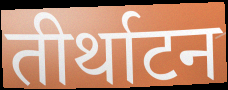
तीर्थाटन